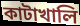
কাটাখালি